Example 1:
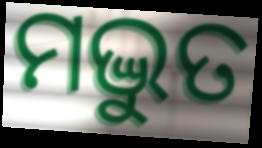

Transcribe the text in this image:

ମଦ୍ଭୁତ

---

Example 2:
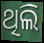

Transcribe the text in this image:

ଥିଲି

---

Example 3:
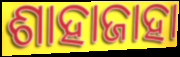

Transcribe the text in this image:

ଶାହାଜାହା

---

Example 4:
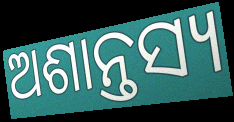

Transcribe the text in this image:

ଅଶାନ୍ତସ୍ୟ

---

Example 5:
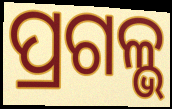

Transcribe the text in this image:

ପ୍ରଗଳ୍ଭ